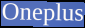
Oneplus